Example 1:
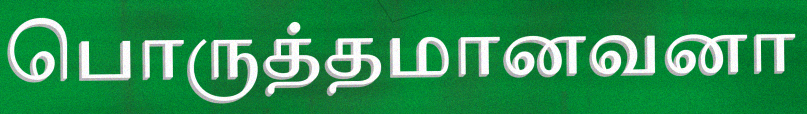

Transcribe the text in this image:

பொருத்தமானவனா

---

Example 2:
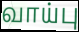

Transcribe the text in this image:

வாய்பு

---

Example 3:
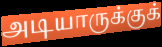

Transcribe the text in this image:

அடியாருக்குக்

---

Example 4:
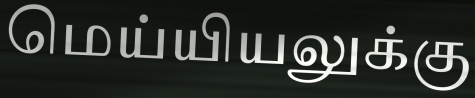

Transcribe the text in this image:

மெய்யியலுக்கு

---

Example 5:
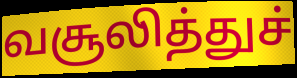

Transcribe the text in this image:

வசூலித்துச்